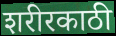
शरीरकाठी